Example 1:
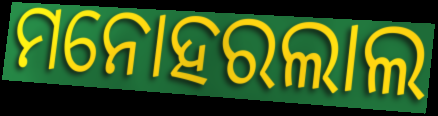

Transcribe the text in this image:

ମନୋହରଲାଲ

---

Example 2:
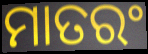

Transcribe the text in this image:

ମାତରଂ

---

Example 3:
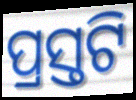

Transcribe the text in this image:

ପ୍ରସ୍ତଟି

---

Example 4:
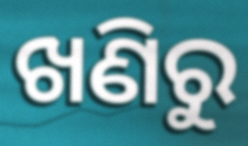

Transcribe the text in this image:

ଖଣିରୁ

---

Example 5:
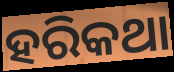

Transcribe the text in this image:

ହରିକଥା